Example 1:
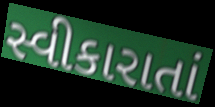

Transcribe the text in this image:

સ્વીકારાતાં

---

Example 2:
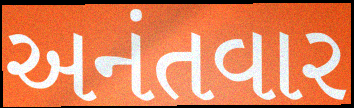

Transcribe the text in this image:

અનંતવાર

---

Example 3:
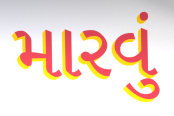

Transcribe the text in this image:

મારવું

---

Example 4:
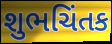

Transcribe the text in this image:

શુભચિંતક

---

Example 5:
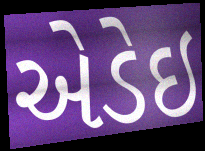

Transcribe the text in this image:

એડેઇ